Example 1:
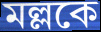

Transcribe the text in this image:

মল্লকে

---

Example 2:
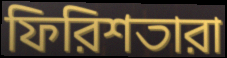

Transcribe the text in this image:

ফিরিশতারা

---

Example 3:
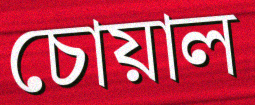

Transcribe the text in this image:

চোয়াল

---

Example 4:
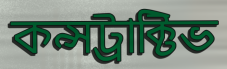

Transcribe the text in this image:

কন্সট্রাক্টিভ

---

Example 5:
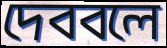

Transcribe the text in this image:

দেববলে